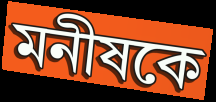
মনীষকে